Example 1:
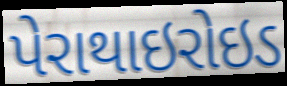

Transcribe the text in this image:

પેરાથાઇરોઇડ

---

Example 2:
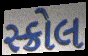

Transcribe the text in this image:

સ્ક્રોલ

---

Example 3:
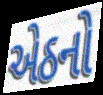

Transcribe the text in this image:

એઠનો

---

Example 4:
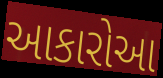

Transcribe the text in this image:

આકારોઆ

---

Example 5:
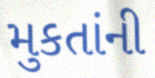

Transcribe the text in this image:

મુકતાંની